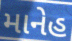
માનેહ